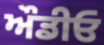
ਔਡੀਓ